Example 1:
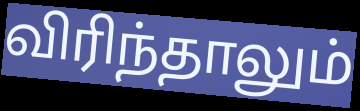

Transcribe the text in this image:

விரிந்தாலும்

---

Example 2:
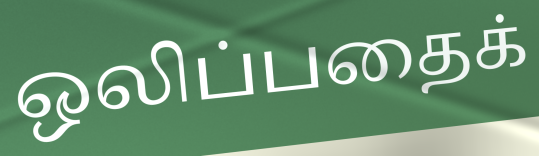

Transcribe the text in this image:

ஒலிப்பதைக்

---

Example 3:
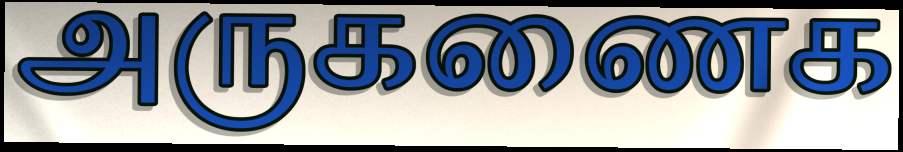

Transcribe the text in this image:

அருகணைக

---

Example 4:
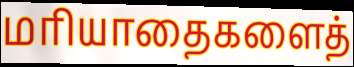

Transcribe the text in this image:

மரியாதைகளைத்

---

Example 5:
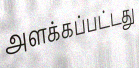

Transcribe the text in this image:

அளக்கப்பட்டது